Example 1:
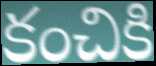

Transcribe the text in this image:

కంచికి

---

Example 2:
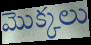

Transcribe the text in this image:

మొక్కలు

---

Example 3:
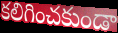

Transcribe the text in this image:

కలిగించకుండా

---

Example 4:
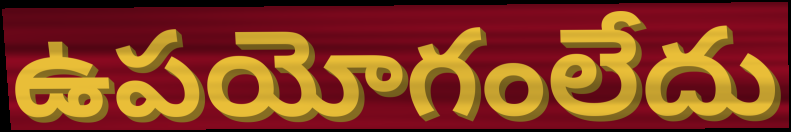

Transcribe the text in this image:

ఉపయోగంలేదు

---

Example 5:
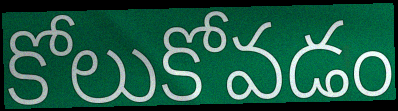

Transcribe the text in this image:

కోలుకోవడం